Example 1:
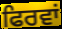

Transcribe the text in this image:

ਫਿਰਵਾਂ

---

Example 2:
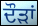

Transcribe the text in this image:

ਦੌੜਾਂ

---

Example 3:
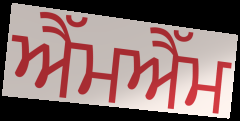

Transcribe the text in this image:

ਐੱਮਐੱਮ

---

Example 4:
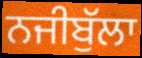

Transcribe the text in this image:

ਨਜੀਬੁੱਲਾ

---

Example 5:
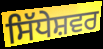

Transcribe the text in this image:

ਸਿੱਧੇਸ਼ਵਰ